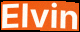
Elvin